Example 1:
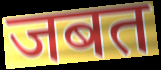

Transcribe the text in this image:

जबत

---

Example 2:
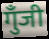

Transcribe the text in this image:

गुँजी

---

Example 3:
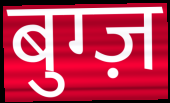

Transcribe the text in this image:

बुग्ज़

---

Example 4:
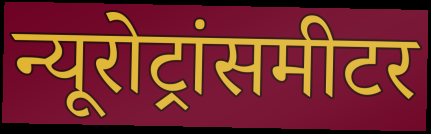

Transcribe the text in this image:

न्यूरोट्रांसमीटर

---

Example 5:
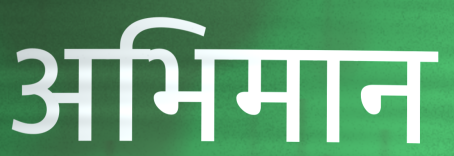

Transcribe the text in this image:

अभिमान